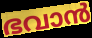
ഭവാൻ